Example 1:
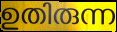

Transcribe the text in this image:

ഉതിരുന്ന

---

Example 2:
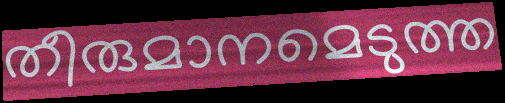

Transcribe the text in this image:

തീരുമാനമെടുത്ത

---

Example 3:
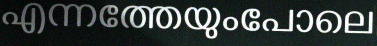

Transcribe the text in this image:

എന്നത്തേയുംപോലെ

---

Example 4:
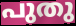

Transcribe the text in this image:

പുതു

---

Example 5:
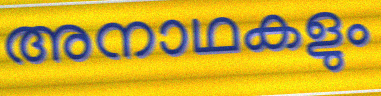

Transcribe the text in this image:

അനാഥകളും